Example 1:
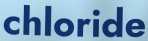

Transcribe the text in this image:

chloride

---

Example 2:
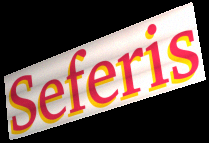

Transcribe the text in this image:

Seferis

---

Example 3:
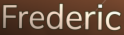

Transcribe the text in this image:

Frederic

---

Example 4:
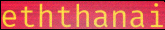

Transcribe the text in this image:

eththanai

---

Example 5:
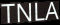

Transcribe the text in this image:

TNLA